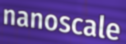
nanoscale